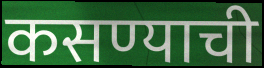
कसण्याची